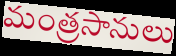
మంత్రసానులు